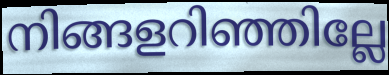
നിങ്ങളറിഞ്ഞില്ലേ